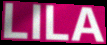
LILA